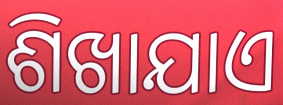
ଶିଖାଯାଏ